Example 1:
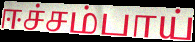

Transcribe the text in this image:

ஈச்சம்பாய்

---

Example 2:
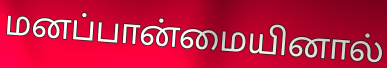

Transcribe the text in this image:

மனப்பான்மையினால்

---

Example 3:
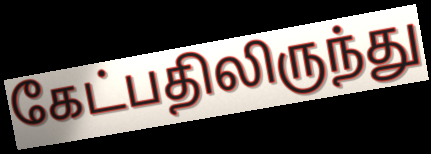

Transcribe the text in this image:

கேட்பதிலிருந்து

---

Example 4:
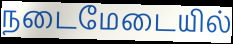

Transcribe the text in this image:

நடைமேடையில்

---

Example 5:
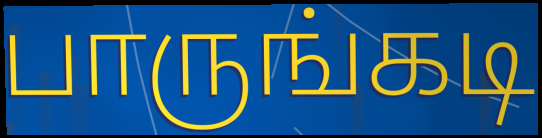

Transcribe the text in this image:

பாருங்கடி